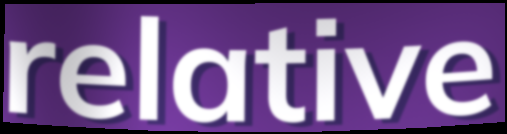
relative